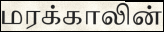
மரக்காலின்